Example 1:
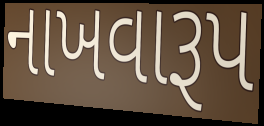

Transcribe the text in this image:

નાખવારૂપ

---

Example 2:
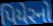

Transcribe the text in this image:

પિયેરનો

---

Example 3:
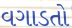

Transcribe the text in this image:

વગાડતો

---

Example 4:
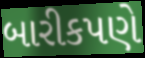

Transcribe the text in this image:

બારીકપણે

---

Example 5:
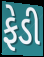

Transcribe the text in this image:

ફેડી